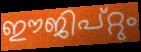
ഈജിപ്റ്റും